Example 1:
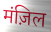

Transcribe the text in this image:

मंज़िल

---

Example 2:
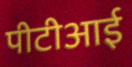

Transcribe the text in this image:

पीटीआई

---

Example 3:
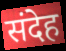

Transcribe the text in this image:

संदेह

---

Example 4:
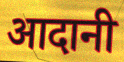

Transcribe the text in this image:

आदानी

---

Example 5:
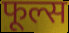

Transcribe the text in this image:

फूल्स